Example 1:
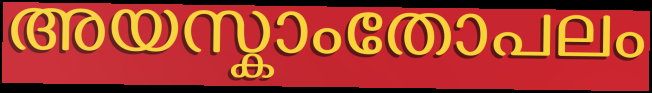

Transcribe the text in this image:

അയസ്കാംതോപലം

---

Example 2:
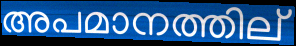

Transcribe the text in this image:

അപമാനത്തില്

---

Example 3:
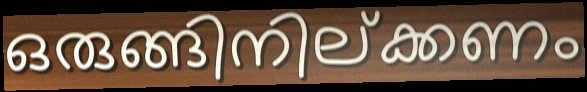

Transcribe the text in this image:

ഒരുങ്ങിനില്ക്കണം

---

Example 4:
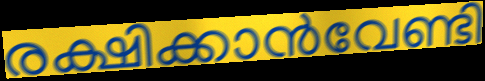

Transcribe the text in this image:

രക്ഷിക്കാൻവേണ്ടി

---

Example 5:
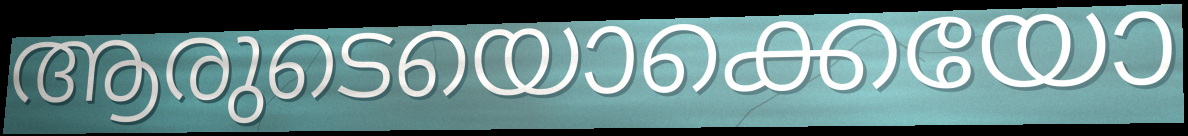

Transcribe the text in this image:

ആരുടെയൊക്കെയോ